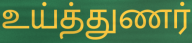
உய்த்துணர்